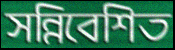
সন্নিবেশিত